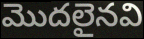
మొదలైనవి